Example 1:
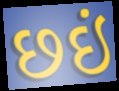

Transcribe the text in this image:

છઇં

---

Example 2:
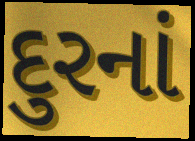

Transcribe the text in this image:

દુરનાં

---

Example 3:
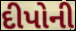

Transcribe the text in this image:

દીપોની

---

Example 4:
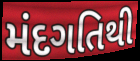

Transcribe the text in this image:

મંદગતિથી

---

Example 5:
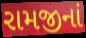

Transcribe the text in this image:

રામજીનાં